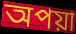
অপয়া